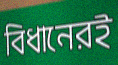
বিধানেরই